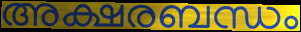
അക്ഷരബന്ധം